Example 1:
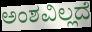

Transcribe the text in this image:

ಅಂಶವಿಲ್ಲದೆ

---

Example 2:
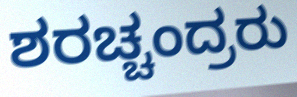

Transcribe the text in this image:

ಶರಚ್ಚಂದ್ರರು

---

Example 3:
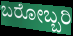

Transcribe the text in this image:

ಬರೋಬ್ಬರಿ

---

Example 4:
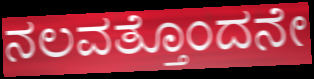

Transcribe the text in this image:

ನಲವತ್ತೊಂದನೇ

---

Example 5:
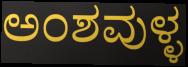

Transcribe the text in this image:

ಅಂಶವುಳ್ಳ